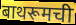
बाथरूमची